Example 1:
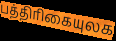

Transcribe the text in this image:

பத்திரிகையுலக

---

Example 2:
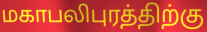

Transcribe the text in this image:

மகாபலிபுரத்திற்கு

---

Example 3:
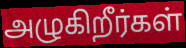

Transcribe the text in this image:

அழுகிறீர்கள்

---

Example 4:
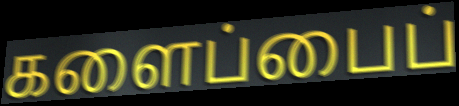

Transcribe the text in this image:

களைப்பைப்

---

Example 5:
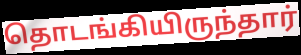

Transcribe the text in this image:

தொடங்கியிருந்தார்